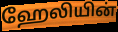
ஹேலியின்